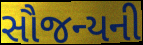
સૌજન્યની